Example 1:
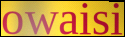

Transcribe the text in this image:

owaisi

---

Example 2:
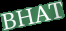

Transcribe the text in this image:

BHAT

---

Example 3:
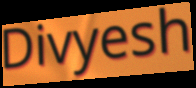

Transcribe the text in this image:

Divyesh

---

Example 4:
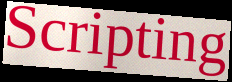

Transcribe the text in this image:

Scripting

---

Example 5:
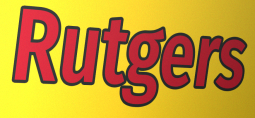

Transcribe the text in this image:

Rutgers